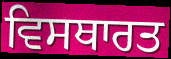
ਵਿਸਥਾਰਤ